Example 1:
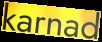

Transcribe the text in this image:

karnad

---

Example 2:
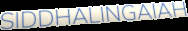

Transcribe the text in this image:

SIDDHALINGAIAH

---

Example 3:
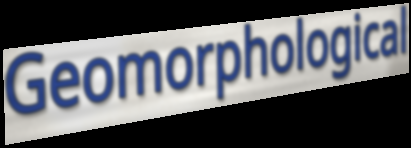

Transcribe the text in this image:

Geomorphological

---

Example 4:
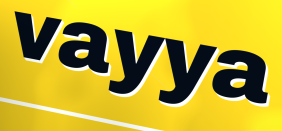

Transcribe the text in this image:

vayya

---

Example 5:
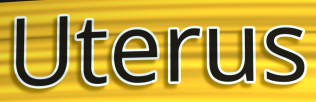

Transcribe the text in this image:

Uterus